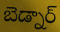
బెడ్నార్